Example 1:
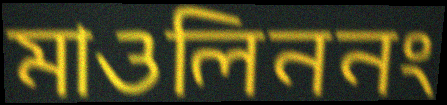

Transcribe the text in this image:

মাওলিননং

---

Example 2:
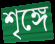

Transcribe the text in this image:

শৃঙ্গে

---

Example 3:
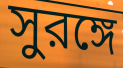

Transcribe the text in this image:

সুরঙ্গে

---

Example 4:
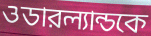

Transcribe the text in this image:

ওডারল্যান্ডকে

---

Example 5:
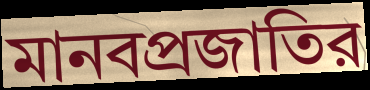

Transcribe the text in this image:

মানবপ্রজাতির